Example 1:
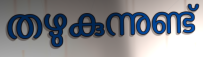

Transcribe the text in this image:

തഴുകുന്നുണ്ട്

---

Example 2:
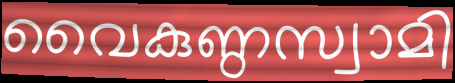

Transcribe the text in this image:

വൈകുണ്ഠസ്വാമി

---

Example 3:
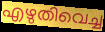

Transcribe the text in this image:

എഴുതിവെച്ച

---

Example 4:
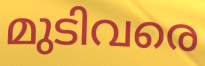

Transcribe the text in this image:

മുടിവരെ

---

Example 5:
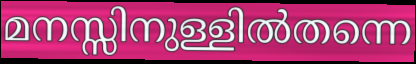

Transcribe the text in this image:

മനസ്സിനുള്ളിൽതന്നെ